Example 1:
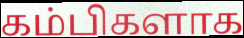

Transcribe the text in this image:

கம்பிகளாக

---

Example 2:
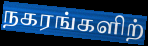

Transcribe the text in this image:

நகரங்களிற்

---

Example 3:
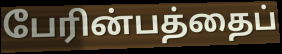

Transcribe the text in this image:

பேரின்பத்தைப்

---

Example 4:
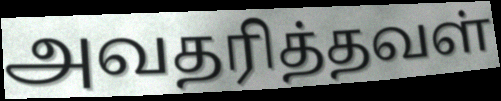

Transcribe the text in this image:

அவதரித்தவள்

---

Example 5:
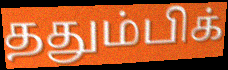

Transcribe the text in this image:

ததும்பிக்